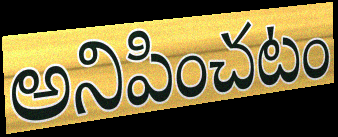
అనిపించటం